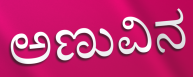
ಅಣುವಿನ